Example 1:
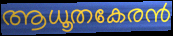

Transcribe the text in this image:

ആധൂതകേരൻ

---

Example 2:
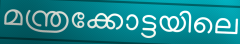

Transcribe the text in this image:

മന്ത്രക്കോട്ടയിലെ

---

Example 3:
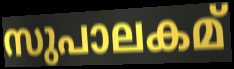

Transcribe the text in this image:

സുപാലകമ്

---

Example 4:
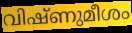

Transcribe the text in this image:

വിഷ്ണുമീശം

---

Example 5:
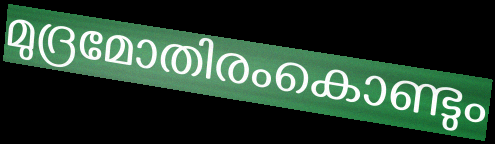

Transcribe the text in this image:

മുദ്രമോതിരംകൊണ്ടും